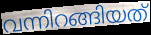
വന്നിറങ്ങിയത്